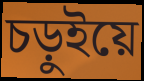
চড়ুইয়ে